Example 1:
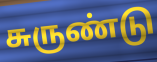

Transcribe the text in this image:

சுருண்டு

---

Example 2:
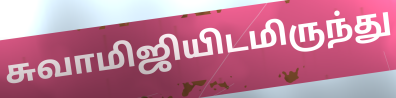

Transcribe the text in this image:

சுவாமிஜியிடமிருந்து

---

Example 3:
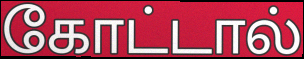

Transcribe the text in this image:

கோட்டால்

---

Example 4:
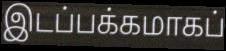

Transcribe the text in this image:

இடப்பக்கமாகப்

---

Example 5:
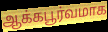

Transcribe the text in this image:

ஆக்கபூர்வமாக